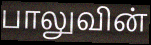
பாலுவின்